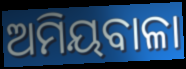
ଅମିୟବାଳା